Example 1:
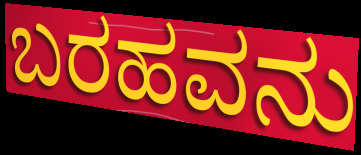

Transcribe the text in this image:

ಬರಹವನು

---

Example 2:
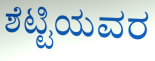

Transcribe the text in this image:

ಶೆಟ್ಟಿಯವರ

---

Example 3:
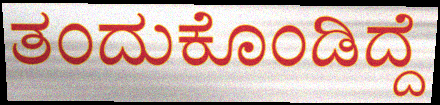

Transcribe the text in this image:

ತಂದುಕೊಂಡಿದ್ದೆ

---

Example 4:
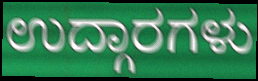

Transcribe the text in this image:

ಉದ್ಗಾರಗಳು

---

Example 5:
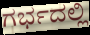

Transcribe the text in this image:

ಗರ್ಭದಲ್ಲಿ